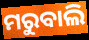
ମରୁବାଲି